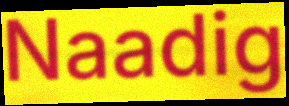
Naadig